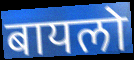
बायलो